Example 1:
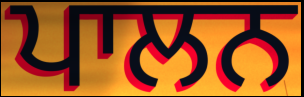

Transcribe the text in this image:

ਪਾਲਨ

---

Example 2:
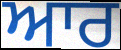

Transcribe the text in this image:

ਆਰ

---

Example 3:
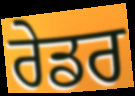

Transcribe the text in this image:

ਰੇਡਰ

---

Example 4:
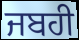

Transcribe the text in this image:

ਜਬਹੀ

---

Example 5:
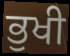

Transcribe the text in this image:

ਭੁਖੀ